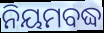
ନିୟମବଦ୍ଧ